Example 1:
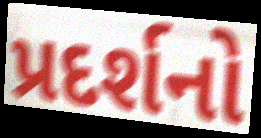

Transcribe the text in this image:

પ્રદર્શનો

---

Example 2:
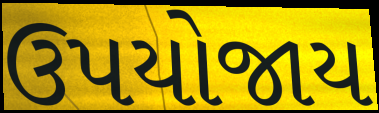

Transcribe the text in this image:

ઉપયોજાય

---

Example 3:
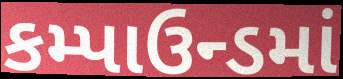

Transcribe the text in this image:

કમ્પાઉન્ડમાં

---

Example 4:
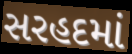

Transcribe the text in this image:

સરહદમાં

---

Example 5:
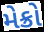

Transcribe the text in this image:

મેક્રો